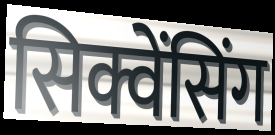
सिक्वेंसिंग